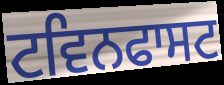
ਟਵਿਨਫਾਸਟ